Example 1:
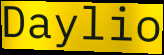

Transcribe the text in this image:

Daylio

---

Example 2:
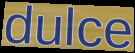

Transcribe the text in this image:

dulce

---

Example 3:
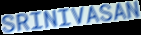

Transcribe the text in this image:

SRINIVASAN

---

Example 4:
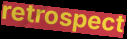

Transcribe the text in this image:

retrospect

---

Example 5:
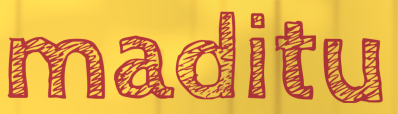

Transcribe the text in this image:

maditu